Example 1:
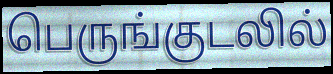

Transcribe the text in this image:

பெருங்குடலில்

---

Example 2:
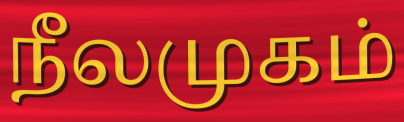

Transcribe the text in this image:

நீலமுகம்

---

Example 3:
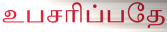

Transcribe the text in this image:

உபசரிப்பதே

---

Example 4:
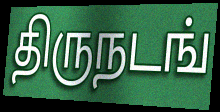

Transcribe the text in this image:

திருநடங்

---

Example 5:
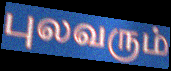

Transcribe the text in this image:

புலவரும்